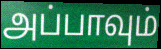
அப்பாவும்